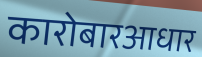
कारोबारआधार